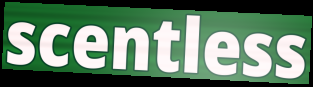
scentless